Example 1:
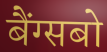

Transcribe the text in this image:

बैंग्सबो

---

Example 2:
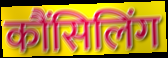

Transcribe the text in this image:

कौंसिलिंग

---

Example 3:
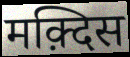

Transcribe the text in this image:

मक़्दिस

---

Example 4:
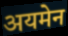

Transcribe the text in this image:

अयमेन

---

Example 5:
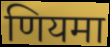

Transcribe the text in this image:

णियमा